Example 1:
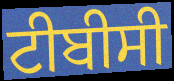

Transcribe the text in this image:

ਟੀਬੀਸੀ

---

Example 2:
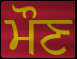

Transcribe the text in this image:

ਮੌਣ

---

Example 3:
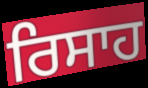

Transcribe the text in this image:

ਰਿਸਾਹ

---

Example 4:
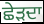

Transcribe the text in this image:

ਛੇੜਦਾ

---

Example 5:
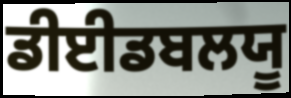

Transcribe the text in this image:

ਡੀਈਡਬਲਯੂ